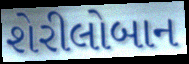
શેરીલોબાન